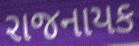
રાજનાયક